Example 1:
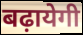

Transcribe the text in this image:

बढ़ायेगी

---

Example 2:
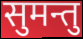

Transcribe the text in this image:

सुमन्तु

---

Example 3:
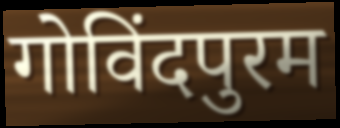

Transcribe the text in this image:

गोविंदपुरम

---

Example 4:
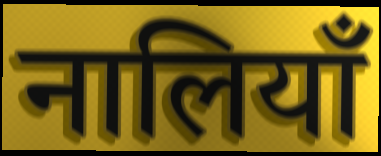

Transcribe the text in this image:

नालियाँ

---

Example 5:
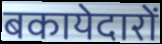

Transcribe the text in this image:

बकायेदारों